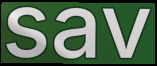
sav